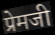
प्रेमजी